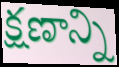
క్షణాన్ని